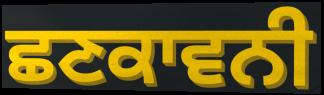
ਛਣਕਾਵਨੀ